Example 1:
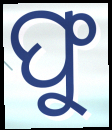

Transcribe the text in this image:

ଫୁ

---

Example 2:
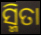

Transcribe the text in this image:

ସ୍ମିତା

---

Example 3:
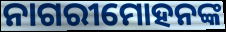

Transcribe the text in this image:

ନାଗରୀମୋହନଙ୍କ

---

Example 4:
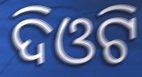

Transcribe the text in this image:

ଦିଓଟି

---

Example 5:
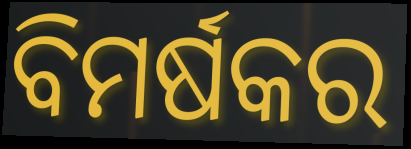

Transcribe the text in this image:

ବିମର୍ଷକର